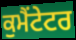
ਕੁਮੈਂਟੇਟਰ